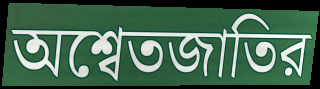
অশ্বেতজাতির